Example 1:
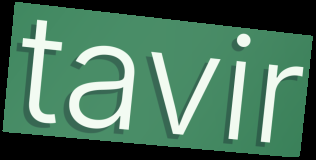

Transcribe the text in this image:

tavir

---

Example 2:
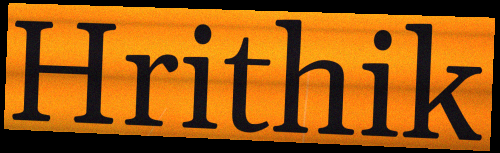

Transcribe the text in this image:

Hrithik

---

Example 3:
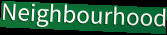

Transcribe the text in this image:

Neighbourhood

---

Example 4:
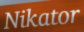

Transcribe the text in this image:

Nikator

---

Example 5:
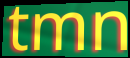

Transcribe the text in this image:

tmn